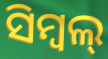
ସିମ୍ବଲ୍